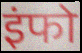
इंफो